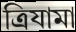
ত্রিযামা